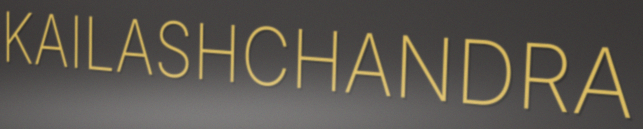
KAILASHCHANDRA